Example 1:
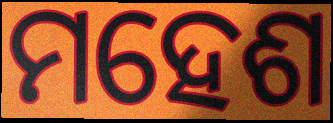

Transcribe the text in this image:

ମହେଶ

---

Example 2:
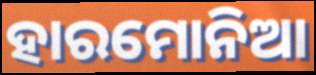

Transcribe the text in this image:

ହାରମୋନିଆ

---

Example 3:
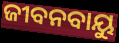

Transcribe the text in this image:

ଜୀବନବାୟୁ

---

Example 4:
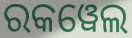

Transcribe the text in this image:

ରକୱେଲ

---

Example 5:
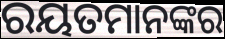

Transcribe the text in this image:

ରୟତମାନଙ୍କର